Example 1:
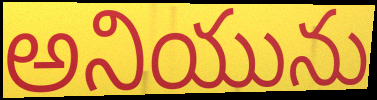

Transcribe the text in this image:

అనియును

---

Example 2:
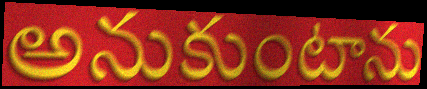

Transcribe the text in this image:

అనుకుంటాను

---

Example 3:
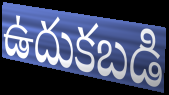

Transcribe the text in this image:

ఉదుకబడి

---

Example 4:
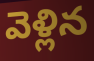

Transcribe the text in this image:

వెళ్లిన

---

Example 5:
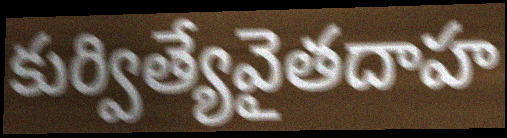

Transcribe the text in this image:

కుర్విత్యేవైతదాహ